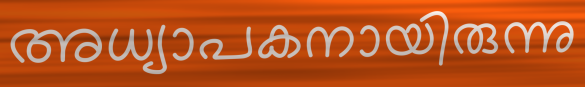
അധ്യാപകനായിരുന്നു